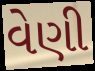
વેણી